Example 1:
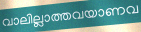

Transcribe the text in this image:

വാലില്ലാത്തവയാണവ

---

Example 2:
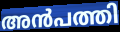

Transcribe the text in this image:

അൻപത്തി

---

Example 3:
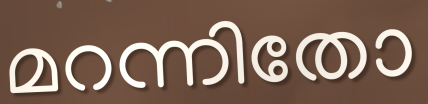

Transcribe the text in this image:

മറന്നിതോ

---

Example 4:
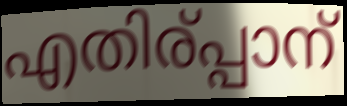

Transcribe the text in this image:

എതിര്പ്പാന്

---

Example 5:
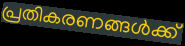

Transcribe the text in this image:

പ്രതികരണങ്ങൾക്ക്